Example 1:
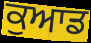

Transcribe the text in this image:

ਕੁਆਡ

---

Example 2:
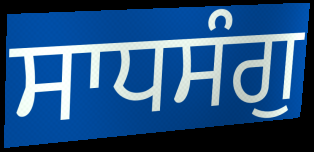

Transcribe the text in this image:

ਸਾਧਸੰਗੁ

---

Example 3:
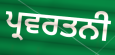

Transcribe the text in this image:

ਪ੍ਰਵਰਤਨੀ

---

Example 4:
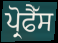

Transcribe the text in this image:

ਪ੍ਰੋਫੈੱਸ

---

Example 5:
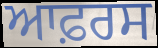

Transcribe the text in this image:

ਆਫ਼ਰਸ